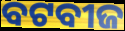
ବଟବୀଜ